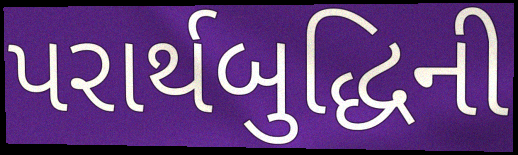
પરાર્થબુદ્ધિની